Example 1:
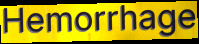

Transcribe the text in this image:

Hemorrhage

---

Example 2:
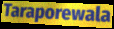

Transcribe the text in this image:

Taraporewala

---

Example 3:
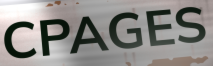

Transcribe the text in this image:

CPAGES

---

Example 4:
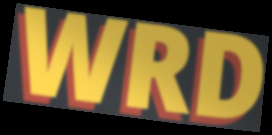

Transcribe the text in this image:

WRD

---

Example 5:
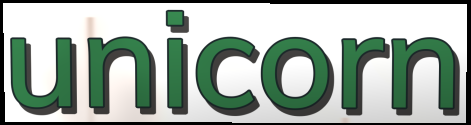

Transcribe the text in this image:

unicorn